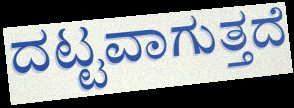
ದಟ್ಟವಾಗುತ್ತದೆ